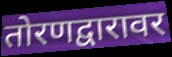
तोरणद्वारावर